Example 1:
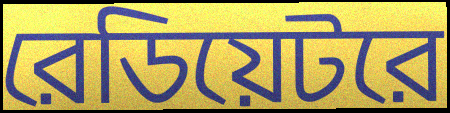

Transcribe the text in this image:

রেডিয়েটরে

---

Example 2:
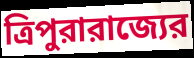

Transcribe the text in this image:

ত্রিপুরারাজ্যের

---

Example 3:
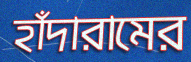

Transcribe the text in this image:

হাঁদারামের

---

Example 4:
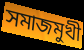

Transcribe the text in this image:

সমাজমুখী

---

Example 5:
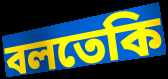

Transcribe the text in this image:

বলতেকি